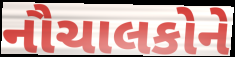
નૌચાલકોને